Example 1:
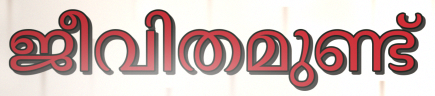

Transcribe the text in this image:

ജീവിതമുണ്ട്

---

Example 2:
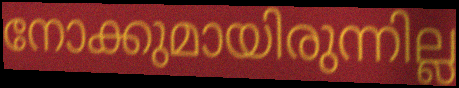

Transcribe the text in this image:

നോക്കുമായിരുന്നില്ല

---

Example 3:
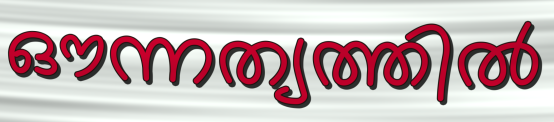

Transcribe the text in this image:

ഔന്നത്യത്തിൽ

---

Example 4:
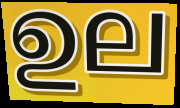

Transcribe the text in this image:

ഉല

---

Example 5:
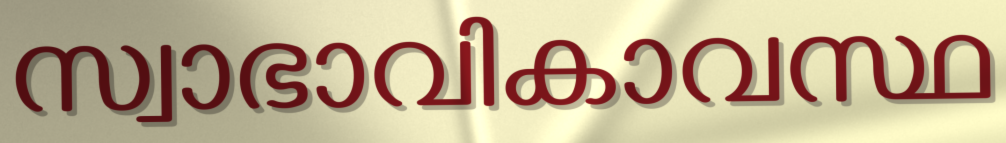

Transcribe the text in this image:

സ്വാഭാവികാവസ്ഥ